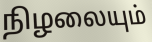
நிழலையும்